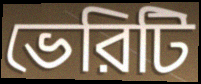
ভেরিটি